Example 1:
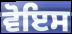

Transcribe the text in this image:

ਵੋਇਸ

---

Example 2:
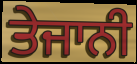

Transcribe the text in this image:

ਤੇਜਾਨੀ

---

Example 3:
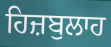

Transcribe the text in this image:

ਹਿਜ਼ਬੁਲਾਹ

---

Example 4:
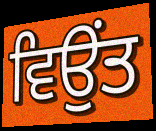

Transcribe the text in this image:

ਵਿਉਂਤ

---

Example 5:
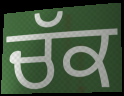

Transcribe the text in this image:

ਚੱਕ